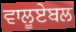
ਵਾਲੂਏਬਲ